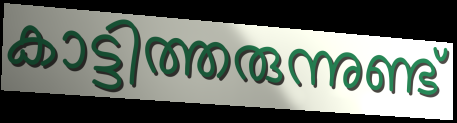
കാട്ടിത്തരുന്നുണ്ട്